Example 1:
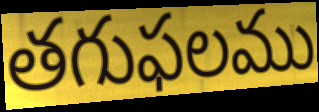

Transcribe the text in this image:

తగుఫలము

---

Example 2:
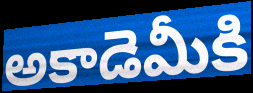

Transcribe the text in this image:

అకాడెమీకి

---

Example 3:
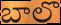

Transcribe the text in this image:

బాలొ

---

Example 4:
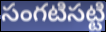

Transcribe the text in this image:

సంగటిసట్టి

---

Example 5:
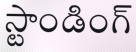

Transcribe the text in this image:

స్టాండింగ్